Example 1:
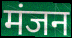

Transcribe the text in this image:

मंजन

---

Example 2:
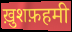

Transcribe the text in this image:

ख़ुशफ़हमी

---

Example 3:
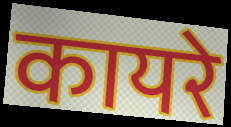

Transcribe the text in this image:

कायरे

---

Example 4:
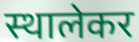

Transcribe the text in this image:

स्थालेकर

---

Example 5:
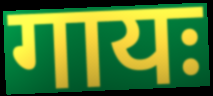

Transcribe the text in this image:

गायः